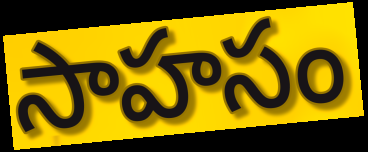
సాహసం